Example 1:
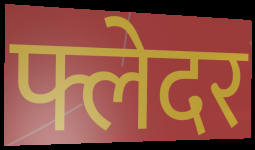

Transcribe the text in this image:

फ्लेदर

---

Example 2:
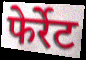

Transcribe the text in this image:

फेर्रेट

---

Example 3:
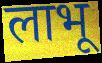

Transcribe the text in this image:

लाभू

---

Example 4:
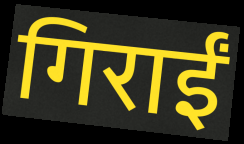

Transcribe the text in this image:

गिराईं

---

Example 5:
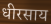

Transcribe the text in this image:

धीरसाय